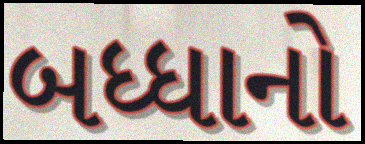
બધ્ધાનો